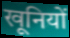
खूनियों